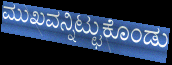
ಮುಖವನ್ನಿಟ್ಟುಕೊಂಡು